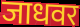
जाधवर